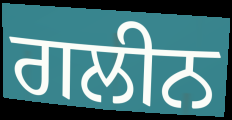
ਗਲੀਨ